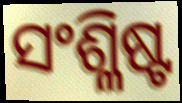
ସଂଶ୍ଳିଷ୍ଟ